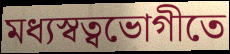
মধ্যস্বত্বভোগীতে